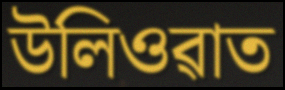
উলিওৱাত